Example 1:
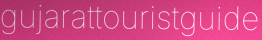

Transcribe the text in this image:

gujarattouristguide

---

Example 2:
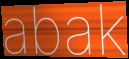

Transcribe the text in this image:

abak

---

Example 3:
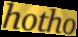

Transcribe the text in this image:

hotho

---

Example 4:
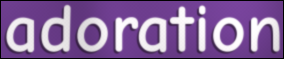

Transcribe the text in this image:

adoration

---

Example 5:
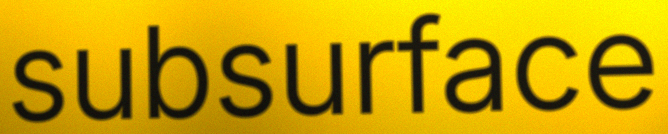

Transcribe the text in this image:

subsurface